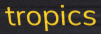
tropics